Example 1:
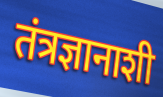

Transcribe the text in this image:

तंत्रज्ञानाशी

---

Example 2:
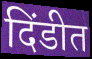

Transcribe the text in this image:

दिंडीत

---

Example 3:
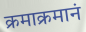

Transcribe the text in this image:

क्रमाक्रमानं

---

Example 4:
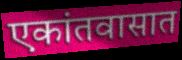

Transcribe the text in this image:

एकांतवासात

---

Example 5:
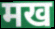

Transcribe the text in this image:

मख